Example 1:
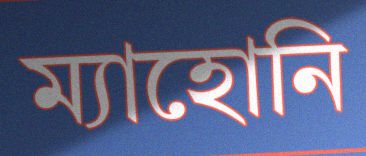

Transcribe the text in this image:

ম্যাহোনি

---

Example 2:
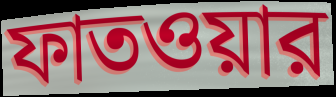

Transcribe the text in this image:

ফাতওয়ার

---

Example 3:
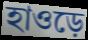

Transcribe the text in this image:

হাওড়ে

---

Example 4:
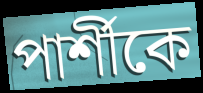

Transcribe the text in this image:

পার্শীকে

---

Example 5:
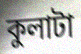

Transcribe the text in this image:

কুলাটা